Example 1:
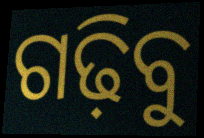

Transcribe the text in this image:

ଗଢ଼ିବୁ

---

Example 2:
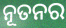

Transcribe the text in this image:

ନୂତନର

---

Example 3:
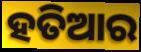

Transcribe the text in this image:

ହତିଆର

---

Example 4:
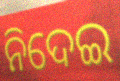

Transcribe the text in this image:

ନିଦେଇ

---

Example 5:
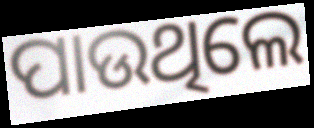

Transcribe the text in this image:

ପାଉଥିଲେ